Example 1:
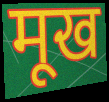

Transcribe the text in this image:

मूख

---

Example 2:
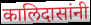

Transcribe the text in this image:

कालिदासांनी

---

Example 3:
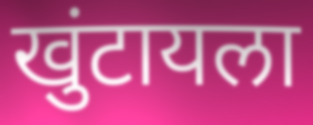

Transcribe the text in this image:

खुंटायला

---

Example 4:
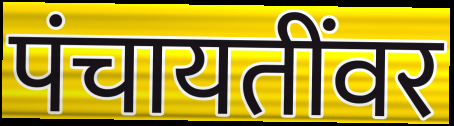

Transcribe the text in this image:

पंचायतींवर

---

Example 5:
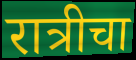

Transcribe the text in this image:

रात्रीचा